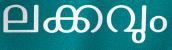
ലക്കവും